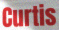
Curtis